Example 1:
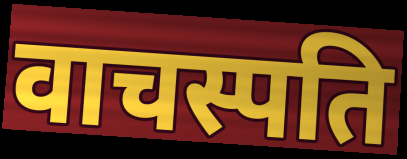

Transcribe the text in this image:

वाचस्पति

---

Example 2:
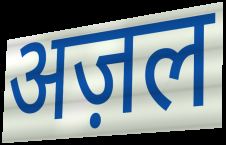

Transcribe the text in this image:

अज़ल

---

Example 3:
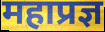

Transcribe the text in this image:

महाप्रज्ञ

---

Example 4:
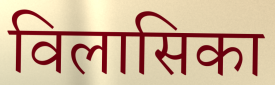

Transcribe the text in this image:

विलासिका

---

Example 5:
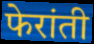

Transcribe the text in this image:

फेरांती